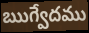
ఋగ్వేదము